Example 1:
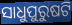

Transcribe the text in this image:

ସାଧୁପୁରୁଷଟି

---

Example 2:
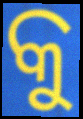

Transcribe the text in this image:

କୁ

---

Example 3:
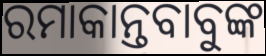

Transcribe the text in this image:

ରମାକାନ୍ତବାବୁଙ୍କ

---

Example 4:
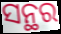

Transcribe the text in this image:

ସନ୍ଥର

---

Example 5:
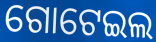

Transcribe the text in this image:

ଗୋଟେଇଲ